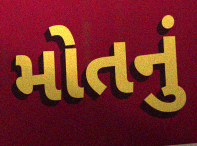
મોતનું